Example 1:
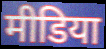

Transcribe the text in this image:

मीडिया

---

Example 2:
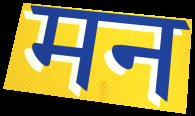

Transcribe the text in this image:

मन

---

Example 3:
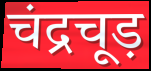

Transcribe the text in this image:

चंद्रचूड़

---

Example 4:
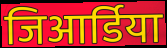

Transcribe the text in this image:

जिआर्डिया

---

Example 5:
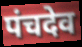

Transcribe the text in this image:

पंचदेव